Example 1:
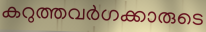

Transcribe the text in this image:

കറുത്തവർഗക്കാരുടെ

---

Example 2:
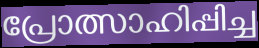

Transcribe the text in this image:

പ്രോത്സാഹിപ്പിച്ച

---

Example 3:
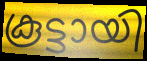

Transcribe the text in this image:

കൂട്ടായി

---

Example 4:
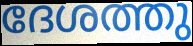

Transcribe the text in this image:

ദേശത്തു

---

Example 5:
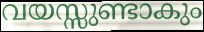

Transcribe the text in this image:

വയസ്സുണ്ടാകും